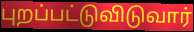
புறப்பட்டுவிடுவார்